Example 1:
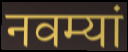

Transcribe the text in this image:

नवम्यां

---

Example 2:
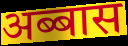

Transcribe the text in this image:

अब्बास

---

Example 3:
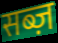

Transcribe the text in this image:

सब्ज़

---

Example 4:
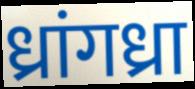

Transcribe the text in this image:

ध्रांगध्रा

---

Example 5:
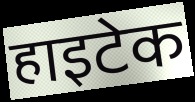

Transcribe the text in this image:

हाइटेक